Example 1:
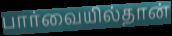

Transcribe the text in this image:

பார்வையில்தான்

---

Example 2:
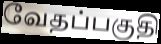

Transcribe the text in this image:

வேதப்பகுதி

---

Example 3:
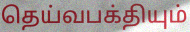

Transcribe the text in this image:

தெய்வபக்தியும்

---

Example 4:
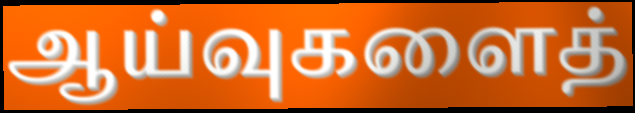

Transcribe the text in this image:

ஆய்வுகளைத்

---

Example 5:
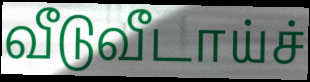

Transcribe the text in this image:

வீடுவீடாய்ச்